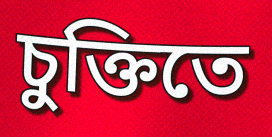
চুক্তিতে